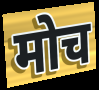
मोच